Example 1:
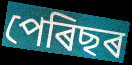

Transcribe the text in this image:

পেৰিছৰ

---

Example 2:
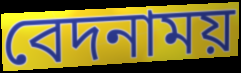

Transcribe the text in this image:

বেদনাময়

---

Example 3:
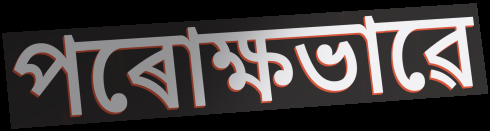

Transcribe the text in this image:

পৰোক্ষভাৱে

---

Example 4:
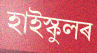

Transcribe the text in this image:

হাইস্কুলৰ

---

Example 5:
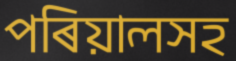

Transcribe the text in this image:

পৰিয়ালসহ